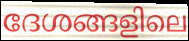
ദേശങ്ങളിലെ